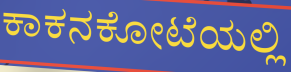
ಕಾಕನಕೋಟೆಯಲ್ಲಿ